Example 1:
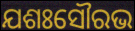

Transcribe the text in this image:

ଯଶଃସୌରଭ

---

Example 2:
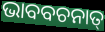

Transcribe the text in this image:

ଭାବବଚନାତ୍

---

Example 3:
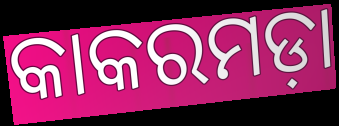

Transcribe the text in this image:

କାକରମଡ଼ା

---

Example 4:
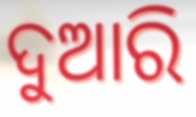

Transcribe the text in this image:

ଦୁଆରି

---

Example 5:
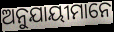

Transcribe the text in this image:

ଅନୁଯାୟୀମାନେ